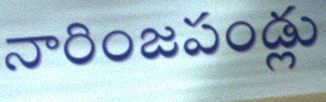
నారింజపండ్లు